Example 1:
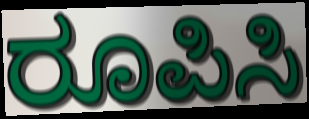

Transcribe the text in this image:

ರೂಪಿಸಿ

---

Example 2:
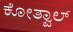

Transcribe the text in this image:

ಕೋತ್ವಾಲ್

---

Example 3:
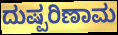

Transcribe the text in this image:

ದುಷ್ಪರಿಣಾಮ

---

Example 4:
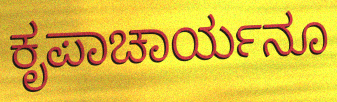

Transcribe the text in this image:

ಕೃಪಾಚಾರ್ಯನೂ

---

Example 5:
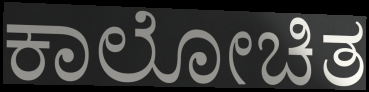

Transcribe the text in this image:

ಕಾಲೋಚಿತ